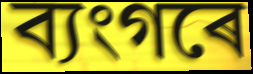
ব্যংগৰে